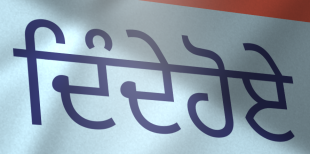
ਦਿੰਦੇਹੋਏ